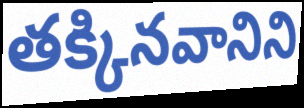
తక్కినవానిని